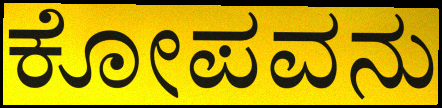
ಕೋಪವನು